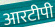
आरटीपी